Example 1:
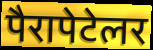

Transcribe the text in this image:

पैरापेटेलर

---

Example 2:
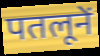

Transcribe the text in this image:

पतलूनें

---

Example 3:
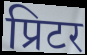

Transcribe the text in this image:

प्रिटर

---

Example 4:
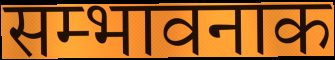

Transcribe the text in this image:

सम्भावनाक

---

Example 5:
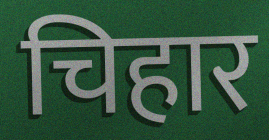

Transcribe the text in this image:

चिहार